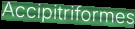
Accipitriformes